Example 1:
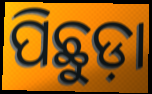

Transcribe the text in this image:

ପିଛୁଡ଼ା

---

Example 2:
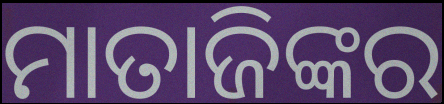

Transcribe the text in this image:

ମାତାଜିଙ୍କର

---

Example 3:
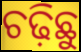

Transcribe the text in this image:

ଚଢ଼ିଛୁ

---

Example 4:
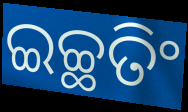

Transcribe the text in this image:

ଇଚ୍ଛତିଂ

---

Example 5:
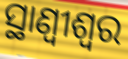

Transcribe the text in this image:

ସ୍ଥାଣ୍ୱୀଶ୍ଵର